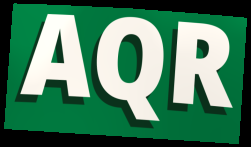
AQR